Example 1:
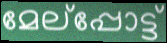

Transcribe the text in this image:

മേല്പ്പോട്ട്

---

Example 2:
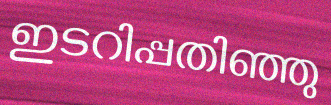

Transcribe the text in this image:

ഇടറിപ്പതിഞ്ഞു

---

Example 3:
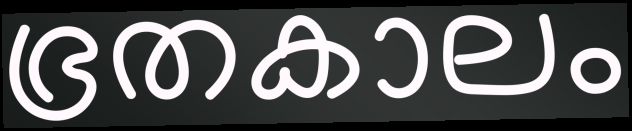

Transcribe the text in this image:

ഭ്രതകാലം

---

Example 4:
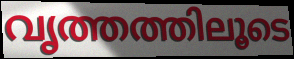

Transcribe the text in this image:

വൃത്തത്തിലൂടെ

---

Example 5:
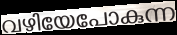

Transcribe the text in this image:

വഴിയേപോകുന്ന